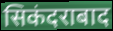
सिकंदराबाद